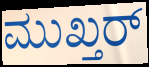
ಮುಖ್ತರ್